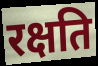
रक्षति